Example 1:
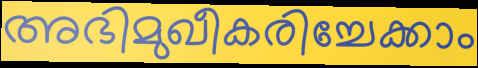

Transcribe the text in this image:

അഭിമുഖീകരിച്ചേക്കാം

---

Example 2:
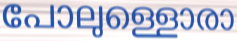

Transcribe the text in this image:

പോലുള്ളൊരാ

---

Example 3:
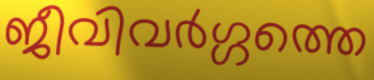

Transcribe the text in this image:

ജീവിവർഗ്ഗത്തെ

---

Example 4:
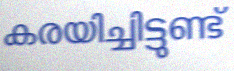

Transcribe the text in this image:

കരയിച്ചിട്ടുണ്ട്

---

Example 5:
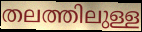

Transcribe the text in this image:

തലത്തിലുള്ള